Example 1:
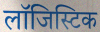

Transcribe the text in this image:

लॉजिस्टिक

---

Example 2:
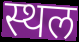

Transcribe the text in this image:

स्थल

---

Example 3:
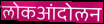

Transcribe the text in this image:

लोकआंदोलन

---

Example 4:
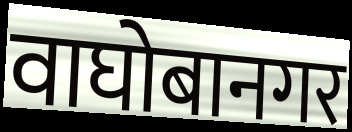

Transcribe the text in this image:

वाघोबानगर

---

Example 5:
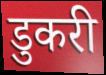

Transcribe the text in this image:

डुकरी